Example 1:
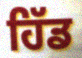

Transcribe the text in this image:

ਹਿੱਡ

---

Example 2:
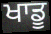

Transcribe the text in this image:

ਖਾਡੂ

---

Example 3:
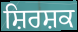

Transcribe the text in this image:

ਸ਼ਿਰਸ਼ਕ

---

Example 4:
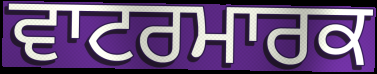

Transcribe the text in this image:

ਵਾਟਰਮਾਰਕ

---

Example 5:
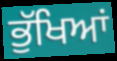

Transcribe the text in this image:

ਭੁੱਖਿਆਂ